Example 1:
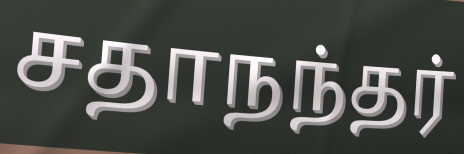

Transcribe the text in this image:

சதாநந்தர்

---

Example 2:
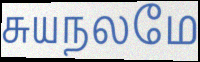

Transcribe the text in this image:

சுயநலமே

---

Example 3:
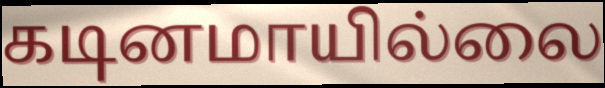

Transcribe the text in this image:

கடினமாயில்லை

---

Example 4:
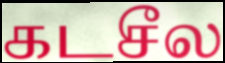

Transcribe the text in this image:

கடசீல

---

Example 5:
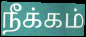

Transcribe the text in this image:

நீக்கம்